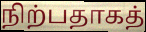
நிற்பதாகத்